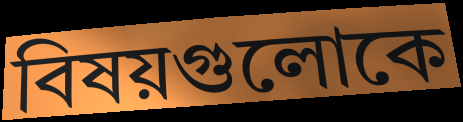
বিষয়গুলোকে